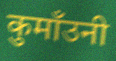
कुमाँउनी